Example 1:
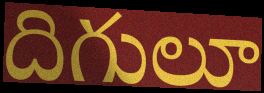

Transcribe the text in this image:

దిగులూ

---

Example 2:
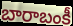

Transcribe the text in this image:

బారాబంకీ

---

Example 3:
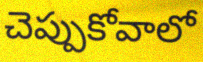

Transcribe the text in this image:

చెప్పుకోవాలో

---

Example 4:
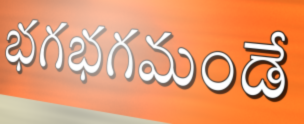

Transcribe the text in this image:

భగభగమండే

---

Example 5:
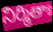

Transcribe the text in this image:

నిర్మితాః